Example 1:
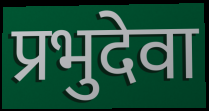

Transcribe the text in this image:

प्रभुदेवा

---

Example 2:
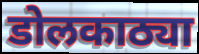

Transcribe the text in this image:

डोलकाठ्या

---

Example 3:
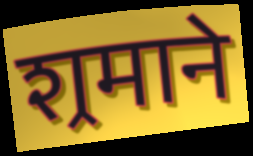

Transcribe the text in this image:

श्रमाने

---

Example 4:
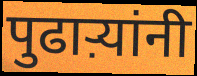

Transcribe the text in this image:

पुढाऱ्‍यांनी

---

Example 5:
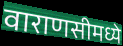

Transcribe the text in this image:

वाराणसीमध्ये